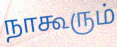
நாகூரும்